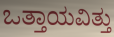
ಒತ್ತಾಯವಿತ್ತು